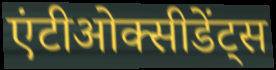
एंटीओक्सीडेंट्स